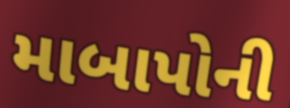
માબાપોની